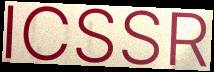
ICSSR